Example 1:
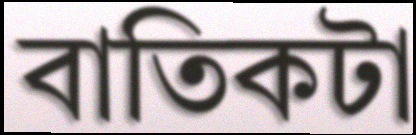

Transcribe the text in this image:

বাতিকটা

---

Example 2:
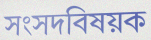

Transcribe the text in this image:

সংসদবিষয়ক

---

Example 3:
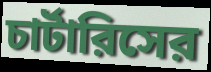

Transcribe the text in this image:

চার্টারিসের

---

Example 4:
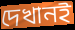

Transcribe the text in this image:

দেখানই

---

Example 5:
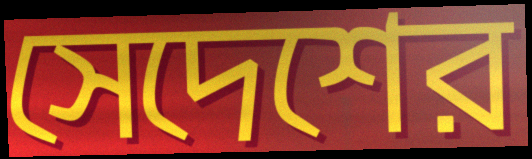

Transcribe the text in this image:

সেদেশের